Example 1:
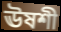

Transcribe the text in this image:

ঊষশী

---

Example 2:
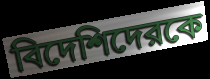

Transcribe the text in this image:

বিদেশিদেরকে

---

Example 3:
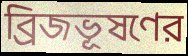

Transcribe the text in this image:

ব্রিজভূষণের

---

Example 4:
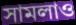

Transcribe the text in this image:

সামলাও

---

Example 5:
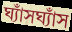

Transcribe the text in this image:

ঘ্যাঁসঘ্যাঁস